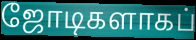
ஜோடிகளாகப்